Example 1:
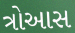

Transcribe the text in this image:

ત્રોઆસ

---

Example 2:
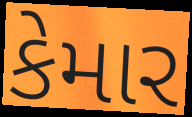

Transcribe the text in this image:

કેમાર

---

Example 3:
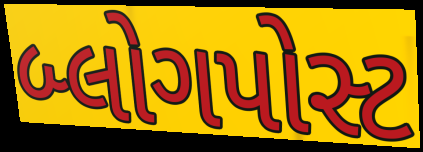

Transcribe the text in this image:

બ્લોગપોસ્ટ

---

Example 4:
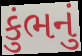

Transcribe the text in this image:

કુંભનું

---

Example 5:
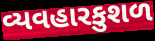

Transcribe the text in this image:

વ્યવહારકુશળ